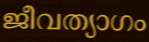
ജീവത്യാഗം